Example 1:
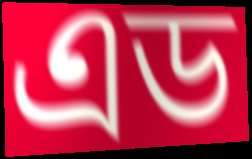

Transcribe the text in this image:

এড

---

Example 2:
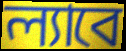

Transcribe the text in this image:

ল্যাবে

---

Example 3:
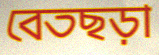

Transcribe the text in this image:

বেতছড়া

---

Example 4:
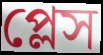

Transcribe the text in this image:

প্লেস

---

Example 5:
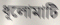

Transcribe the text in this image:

ধূলোমাটি